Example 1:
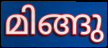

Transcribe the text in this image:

മിങ്ങു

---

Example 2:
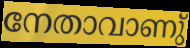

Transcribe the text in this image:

നേതാവാണു്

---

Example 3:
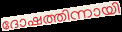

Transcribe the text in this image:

ദോഷത്തിന്നായി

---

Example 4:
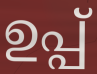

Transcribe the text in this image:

ഉപ്പ്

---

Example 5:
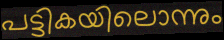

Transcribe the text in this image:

പട്ടികയിലൊന്നും